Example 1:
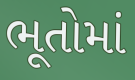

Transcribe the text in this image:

ભૂતોમાં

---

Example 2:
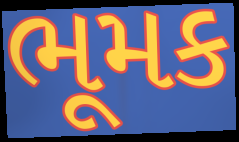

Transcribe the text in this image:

ભૂમક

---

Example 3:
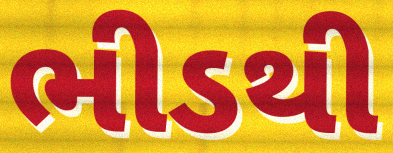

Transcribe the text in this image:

ભીડથી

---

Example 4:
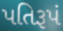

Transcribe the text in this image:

પતિરૂપં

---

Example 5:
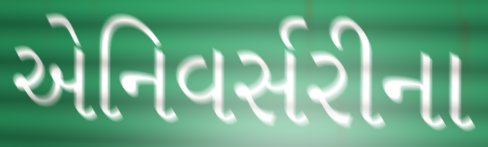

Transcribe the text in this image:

એનિવર્સરીના